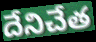
దేనిచేత